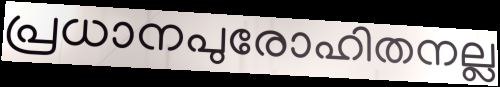
പ്രധാനപുരോഹിതനല്ല